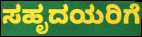
ಸಹೃದಯರಿಗೆ